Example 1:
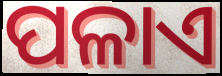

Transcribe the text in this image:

ପଳାଏ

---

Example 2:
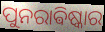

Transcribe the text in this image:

ପୁନରାଵିଷ୍କାର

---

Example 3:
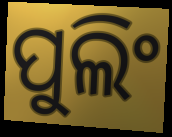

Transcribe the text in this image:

ପୁଲିଂ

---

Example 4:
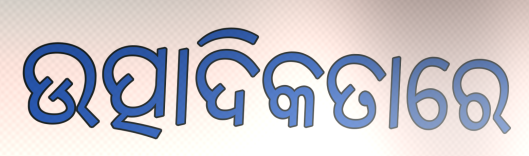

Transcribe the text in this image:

ଉତ୍ପାଦିକତାରେ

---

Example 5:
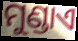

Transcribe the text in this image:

ମୁଣ୍ଡାଏ